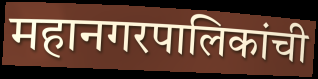
महानगरपालिकांची